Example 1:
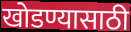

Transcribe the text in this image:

खोडण्यासाठी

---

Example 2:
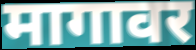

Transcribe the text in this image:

मागावर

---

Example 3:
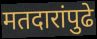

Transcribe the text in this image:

मतदारांपुढे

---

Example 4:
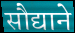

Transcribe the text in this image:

सौद्याने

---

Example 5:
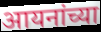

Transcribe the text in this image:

आयनांच्या